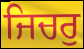
ਜਿਚਰੁ